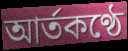
আর্তকণ্ঠে